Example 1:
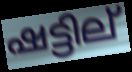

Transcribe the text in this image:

ഷട്ടില്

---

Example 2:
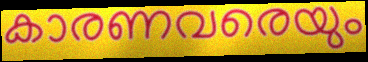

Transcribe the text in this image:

കാരണവരെയും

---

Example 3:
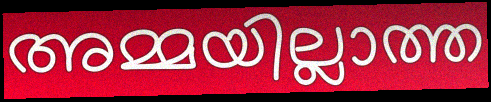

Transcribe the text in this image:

അമ്മയില്ലാത്ത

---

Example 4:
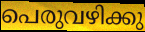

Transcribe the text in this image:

പെരുവഴിക്കു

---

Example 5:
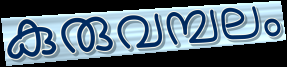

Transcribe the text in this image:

കുരുവമ്പലം